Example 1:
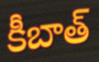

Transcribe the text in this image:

కీబాత్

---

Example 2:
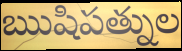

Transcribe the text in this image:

ఋషిపత్నుల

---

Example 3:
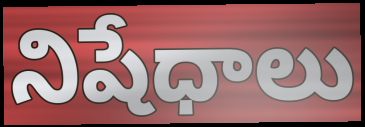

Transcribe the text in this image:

నిషేధాలు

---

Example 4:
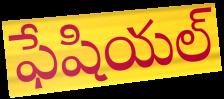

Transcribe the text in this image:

ఫేషియల్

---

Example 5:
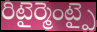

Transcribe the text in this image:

రిటైర్మెంట్పై